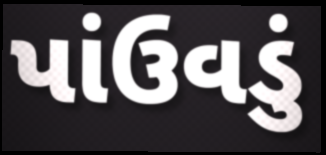
પાંઉવડું